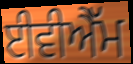
ਈਵੀਐੱਮ